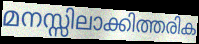
മനസ്സിലാക്കിത്തരിക